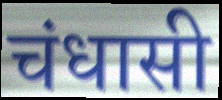
चंधासी